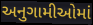
અનુગામીઓમાં